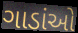
ગાડાંઓ